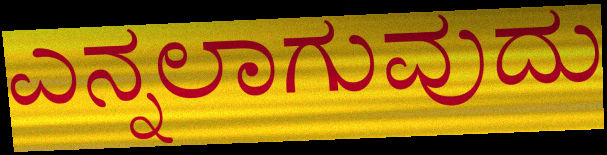
ಎನ್ನಲಾಗುವುದು